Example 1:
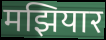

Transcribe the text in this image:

मझियार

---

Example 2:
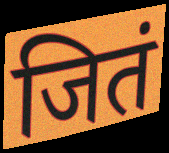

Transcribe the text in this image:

जितं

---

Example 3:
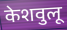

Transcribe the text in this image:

केशवुलू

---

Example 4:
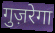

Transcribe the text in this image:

गुज़रेगा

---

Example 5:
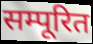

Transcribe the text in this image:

सम्पूरित